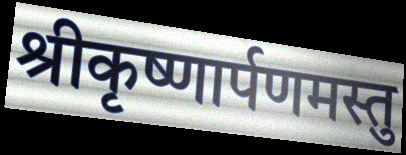
श्रीकृष्णार्पणमस्तु